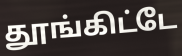
தூங்கிட்டே